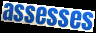
assesses